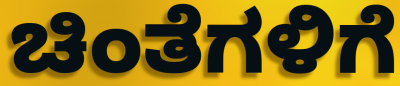
ಚಿಂತೆಗಳಿಗೆ